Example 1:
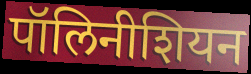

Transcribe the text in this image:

पॉलिनीशियन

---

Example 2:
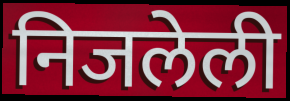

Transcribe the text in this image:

निजलेली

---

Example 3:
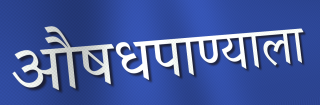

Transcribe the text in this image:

औषधपाण्याला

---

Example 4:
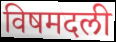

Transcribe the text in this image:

विषमदली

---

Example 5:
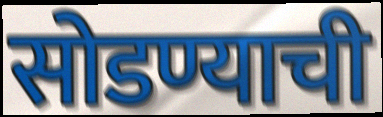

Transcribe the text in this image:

सोडण्याची